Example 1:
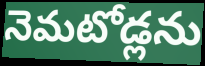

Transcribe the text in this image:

నెమటోడ్లను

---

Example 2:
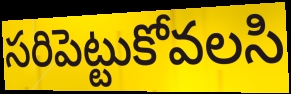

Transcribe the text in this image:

సరిపెట్టుకోవలసి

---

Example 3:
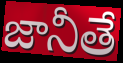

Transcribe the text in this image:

జానీతే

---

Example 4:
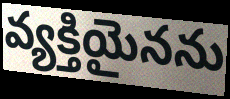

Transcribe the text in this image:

వ్యక్తియైనను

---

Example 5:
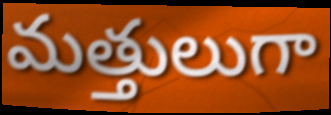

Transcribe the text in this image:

మత్తులుగా